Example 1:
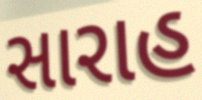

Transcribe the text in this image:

સારાહ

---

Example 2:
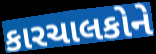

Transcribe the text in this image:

કારચાલકોને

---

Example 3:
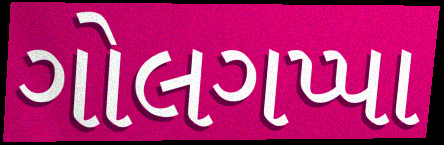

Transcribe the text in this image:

ગોલગપ્પા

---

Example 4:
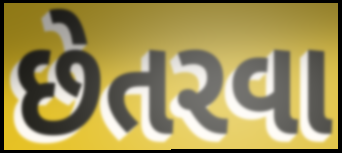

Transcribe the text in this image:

છેતરવા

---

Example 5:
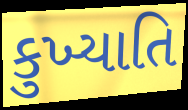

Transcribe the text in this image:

કુખ્યાતિ